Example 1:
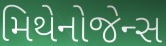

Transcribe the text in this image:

મિથેનોજેન્સ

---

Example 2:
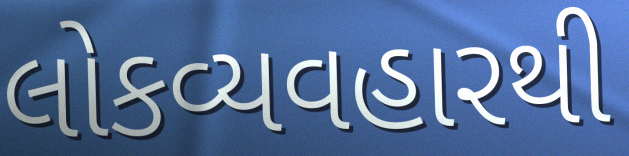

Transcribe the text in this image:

લોકવ્યવહારથી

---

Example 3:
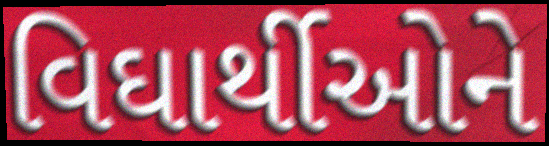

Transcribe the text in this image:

વિઘાર્થીઓને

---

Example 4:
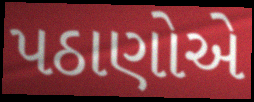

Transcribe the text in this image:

પઠાણોએ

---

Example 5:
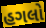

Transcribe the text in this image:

હગલો